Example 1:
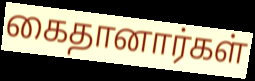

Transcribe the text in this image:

கைதானார்கள்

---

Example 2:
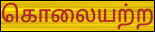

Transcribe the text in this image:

கொலையற்ற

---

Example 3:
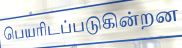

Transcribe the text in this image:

பெயரிடப்படுகின்றன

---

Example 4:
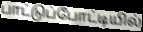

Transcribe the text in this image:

பாட்டுப்போட்டியில்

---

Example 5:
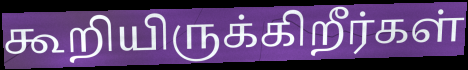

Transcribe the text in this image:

கூறியிருக்கிறீர்கள்